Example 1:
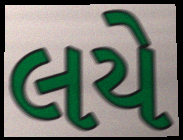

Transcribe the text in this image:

લયે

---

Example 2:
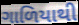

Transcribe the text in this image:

ગાળિયાથી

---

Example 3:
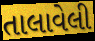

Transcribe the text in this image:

તાલાવેલી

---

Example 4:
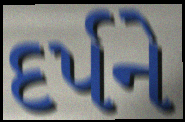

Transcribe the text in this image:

દર્પને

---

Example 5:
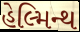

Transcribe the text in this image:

હેલ્મિન્થ